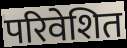
परिवेशित